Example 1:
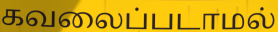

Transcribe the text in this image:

கவலைப்படாமல்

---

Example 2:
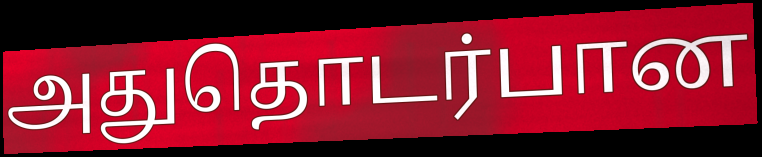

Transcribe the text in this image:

அதுதொடர்பான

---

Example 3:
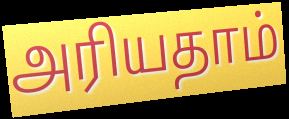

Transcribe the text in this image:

அரியதாம்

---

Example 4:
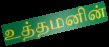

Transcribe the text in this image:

உத்தமனின்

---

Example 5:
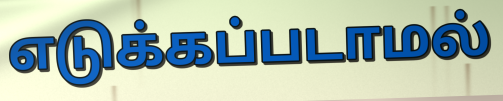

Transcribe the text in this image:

எடுக்கப்படாமல்